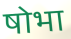
षोभा